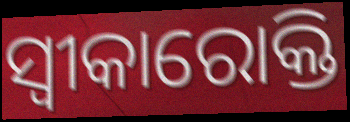
ସ୍ୱୀକାରୋକ୍ତି